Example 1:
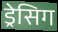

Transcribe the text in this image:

ड्रेसिग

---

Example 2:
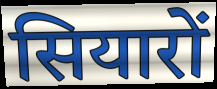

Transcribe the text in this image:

सियारों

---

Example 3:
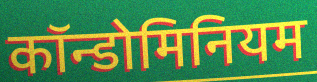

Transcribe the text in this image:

कॉन्डोमिनियम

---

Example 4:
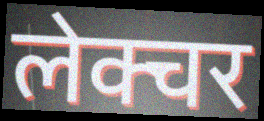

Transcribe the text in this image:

लेक्चर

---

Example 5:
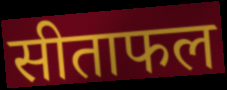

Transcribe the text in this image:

सीताफल